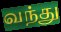
வந்து